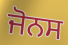
ਜੋਨਸ